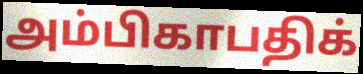
அம்பிகாபதிக்